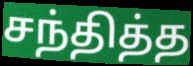
சந்தித்த